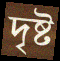
দৃষ্ট